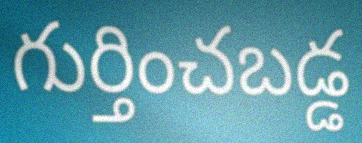
గుర్తించబడ్డ